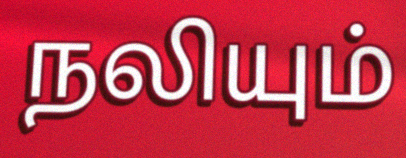
நலியும்